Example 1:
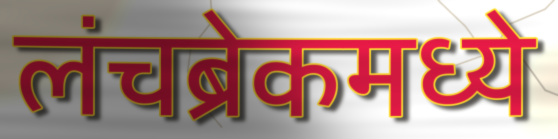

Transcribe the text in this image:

लंचब्रेकमध्ये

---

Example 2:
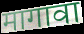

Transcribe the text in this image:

मागावा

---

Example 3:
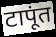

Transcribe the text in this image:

टापूंत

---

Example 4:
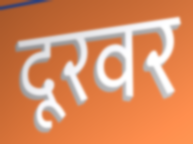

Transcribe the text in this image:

दूरवर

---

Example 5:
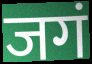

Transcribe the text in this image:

जगं